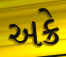
અક્રે